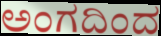
ಅಂಗದಿಂದ